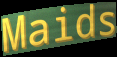
Maids